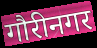
गौरीनगर